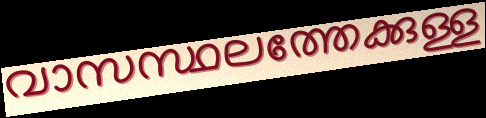
വാസസ്ഥലത്തേക്കുള്ള